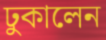
ঢুকালেন